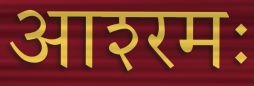
आश्रमः